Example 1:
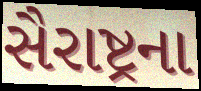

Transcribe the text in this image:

સૈરાષ્ટ્રના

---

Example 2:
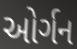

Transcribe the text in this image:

ઓર્ગન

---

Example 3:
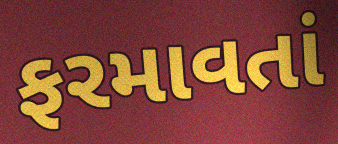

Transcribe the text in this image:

ફરમાવતાં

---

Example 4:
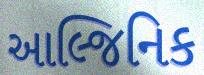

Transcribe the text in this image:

આલ્જિનિક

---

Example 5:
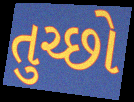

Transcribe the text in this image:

તુચ્છો